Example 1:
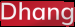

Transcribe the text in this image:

Dhang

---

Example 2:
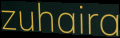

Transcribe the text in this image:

zuhaira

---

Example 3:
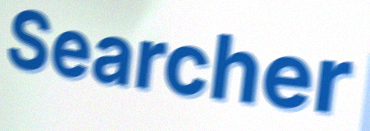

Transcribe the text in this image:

Searcher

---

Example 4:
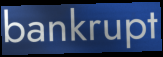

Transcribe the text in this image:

bankrupt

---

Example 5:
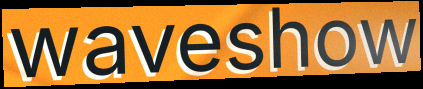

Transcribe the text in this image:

waveshow